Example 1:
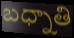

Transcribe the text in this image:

బధ్నాతి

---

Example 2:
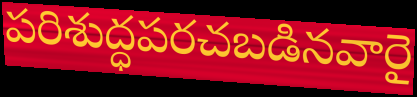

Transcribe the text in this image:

పరిశుద్ధపరచబడినవారై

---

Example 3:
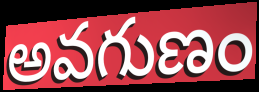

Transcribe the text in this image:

అవగుణం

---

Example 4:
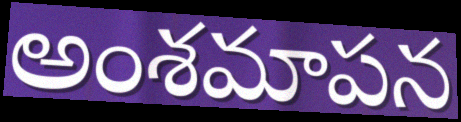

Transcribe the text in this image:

అంశమాపన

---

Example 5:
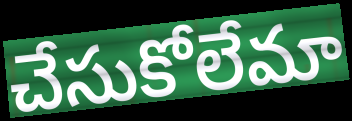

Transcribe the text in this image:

చేసుకోలేమా